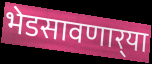
भेडसावणार्‍या